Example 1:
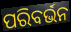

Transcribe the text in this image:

ପରିବର୍ଭନ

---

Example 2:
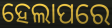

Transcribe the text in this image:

ହେଲାପରେ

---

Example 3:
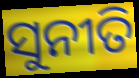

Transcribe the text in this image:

ସୁନୀତି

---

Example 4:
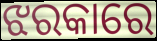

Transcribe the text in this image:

ଝରକାରେ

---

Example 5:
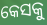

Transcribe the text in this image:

କେସକୁ